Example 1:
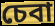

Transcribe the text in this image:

চেবা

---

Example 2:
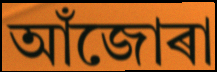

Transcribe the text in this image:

আঁজোৰা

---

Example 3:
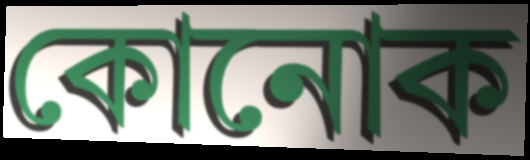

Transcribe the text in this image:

কোনোক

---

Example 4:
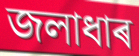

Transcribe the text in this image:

জলাধাৰ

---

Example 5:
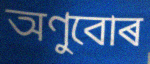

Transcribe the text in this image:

অণুবোৰ